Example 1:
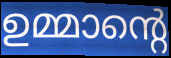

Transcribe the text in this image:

ഉമ്മാന്റെ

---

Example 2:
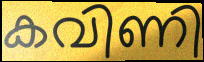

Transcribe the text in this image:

കവിണി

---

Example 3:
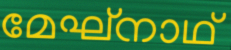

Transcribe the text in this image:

മേഘ്നാഥ്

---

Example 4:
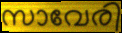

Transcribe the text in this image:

സാവേരി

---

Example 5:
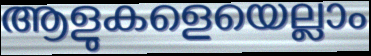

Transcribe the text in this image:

ആളുകളെയെല്ലാം